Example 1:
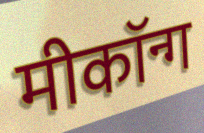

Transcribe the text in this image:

मीकॉन्ग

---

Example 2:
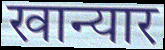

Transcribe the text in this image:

खान्यार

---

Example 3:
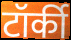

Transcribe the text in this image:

टॉर्की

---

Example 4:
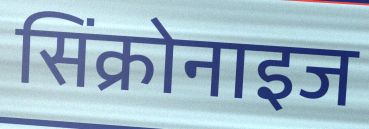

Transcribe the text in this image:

सिंक्रोनाइज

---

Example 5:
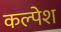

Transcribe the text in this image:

कल्पेश